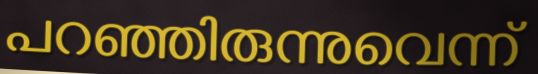
പറഞ്ഞിരുന്നുവെന്ന്